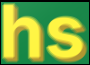
hs